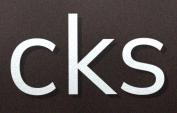
cks